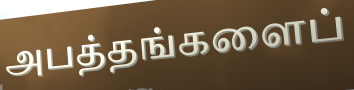
அபத்தங்களைப்